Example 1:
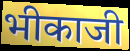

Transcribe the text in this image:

भीकाजी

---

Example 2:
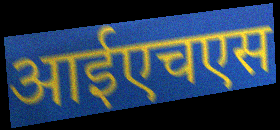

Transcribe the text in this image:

आईएचएस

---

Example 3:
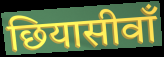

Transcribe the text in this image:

छियासीवाँ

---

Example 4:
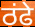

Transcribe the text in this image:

ठंढे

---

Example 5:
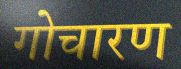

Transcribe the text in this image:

गोचारण